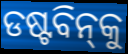
ଡଷ୍ଟବିନ୍‌କୁ